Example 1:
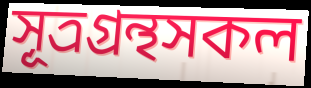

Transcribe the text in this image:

সূত্রগ্রন্থসকল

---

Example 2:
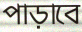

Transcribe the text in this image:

পাড়াবে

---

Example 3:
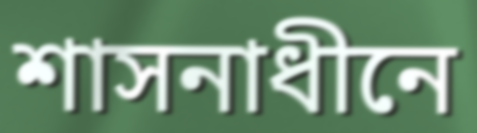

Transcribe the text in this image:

শাসনাধীনে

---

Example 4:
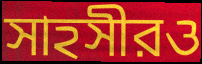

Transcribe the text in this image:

সাহসীরও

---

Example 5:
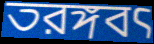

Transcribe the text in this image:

তরঙ্গবৎ